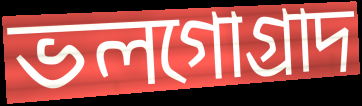
ভলগোগ্রাদ